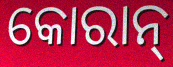
କୋରାନ୍